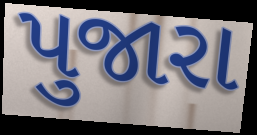
પુજારા